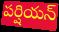
పర్షియన్